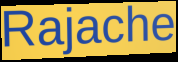
Rajache